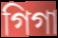
গিগা